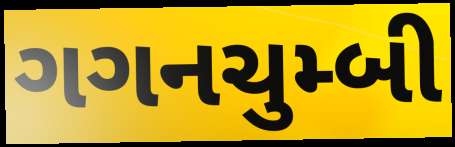
ગગનચુમ્બી